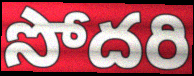
సోదరి